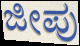
ಜೀಪು